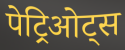
पेट्रिओट्स